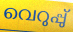
വെറുപ്പു്